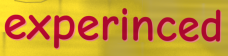
experinced